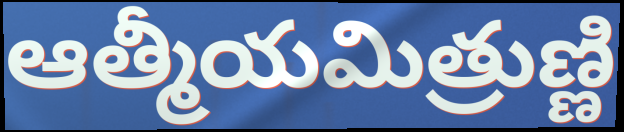
ఆత్మీయమిత్రుణ్ణి